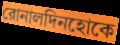
রোনালদিনহোকে